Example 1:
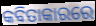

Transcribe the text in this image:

କବିତାକାରରେ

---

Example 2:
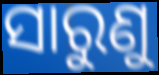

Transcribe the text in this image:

ସାରୁଣୁ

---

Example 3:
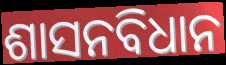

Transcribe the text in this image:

ଶାସନବିଧାନ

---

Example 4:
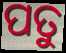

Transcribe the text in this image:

ପତୁ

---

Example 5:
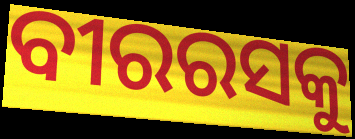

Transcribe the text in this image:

ବୀରରସକୁ